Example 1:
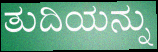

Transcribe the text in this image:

ತುದಿಯನ್ನು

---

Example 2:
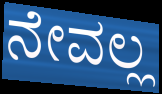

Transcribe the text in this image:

ನೇವಲ್ಲ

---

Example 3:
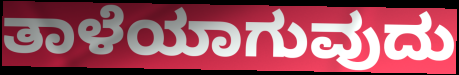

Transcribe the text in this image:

ತಾಳೆಯಾಗುವುದು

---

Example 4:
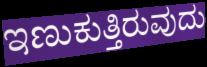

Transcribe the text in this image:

ಇಣುಕುತ್ತಿರುವುದು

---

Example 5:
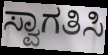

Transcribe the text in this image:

ಸ್ವಾಗತಿಸಿ